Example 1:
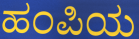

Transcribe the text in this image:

ಹಂಪಿಯ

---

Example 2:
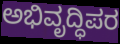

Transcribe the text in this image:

ಅಭಿವೃದ್ಧಿಪರ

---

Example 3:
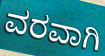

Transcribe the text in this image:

ವರವಾಗಿ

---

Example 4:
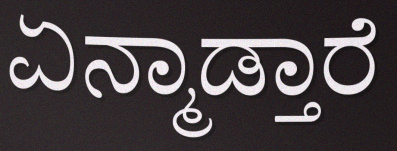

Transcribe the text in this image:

ಏನ್ಮಾಡ್ತಾರೆ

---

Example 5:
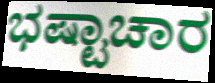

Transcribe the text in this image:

ಭಷ್ಟಾಚಾರ